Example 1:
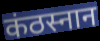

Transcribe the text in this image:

कंठस्नान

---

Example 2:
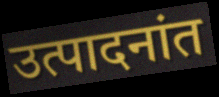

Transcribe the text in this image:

उत्पादनांत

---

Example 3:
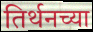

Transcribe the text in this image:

तिर्थनच्या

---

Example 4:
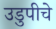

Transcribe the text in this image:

उडुपीचे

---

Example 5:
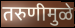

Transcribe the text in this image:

तरुणीमुळे